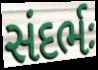
સંદર્ભઃ